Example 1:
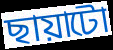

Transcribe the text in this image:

ছায়াটো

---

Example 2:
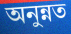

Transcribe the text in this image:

অনুন্নত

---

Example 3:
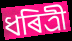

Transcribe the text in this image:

ধৰিত্ৰী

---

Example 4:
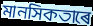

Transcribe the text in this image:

মানসিকতাৰে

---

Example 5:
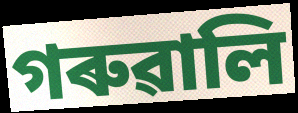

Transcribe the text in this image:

গৰুৱালি